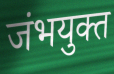
जंभयुक्त